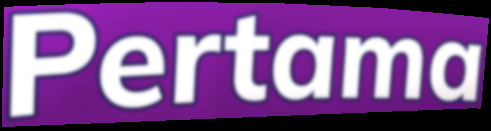
Pertama